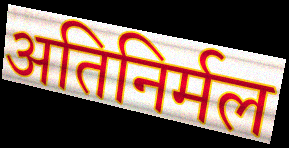
अतिनिर्मल